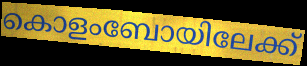
കൊളംബോയിലേക്ക്